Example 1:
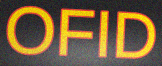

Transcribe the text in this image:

OFID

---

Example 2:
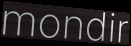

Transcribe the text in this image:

mondir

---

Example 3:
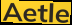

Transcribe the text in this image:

Aetle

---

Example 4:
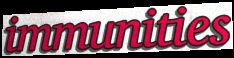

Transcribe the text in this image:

immunities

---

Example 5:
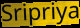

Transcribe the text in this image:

Sripriya